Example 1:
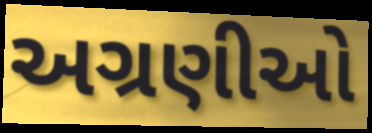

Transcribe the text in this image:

અગ્રણીઓ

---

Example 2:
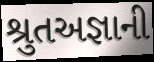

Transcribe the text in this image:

શ્રુતઅજ્ઞાની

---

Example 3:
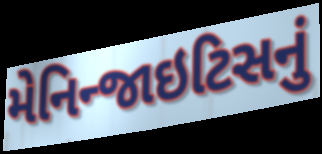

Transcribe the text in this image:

મેનિન્જાઇટિસનું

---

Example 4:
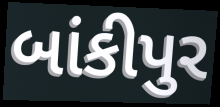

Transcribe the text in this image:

બાંકીપુર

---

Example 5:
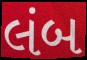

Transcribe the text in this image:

લંબ